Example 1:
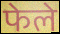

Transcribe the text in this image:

फेले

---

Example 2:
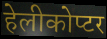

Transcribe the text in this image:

हेलीकोप्टर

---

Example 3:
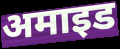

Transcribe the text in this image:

अमाइड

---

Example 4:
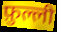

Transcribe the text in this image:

फ़ुल्ली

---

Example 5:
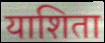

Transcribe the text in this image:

याशिता